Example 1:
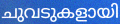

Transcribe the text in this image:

ചുവടുകളായി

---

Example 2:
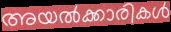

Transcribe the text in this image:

അയൽക്കാരികൾ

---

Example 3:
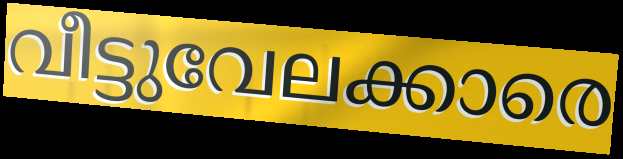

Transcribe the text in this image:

വീട്ടുവേലക്കാരെ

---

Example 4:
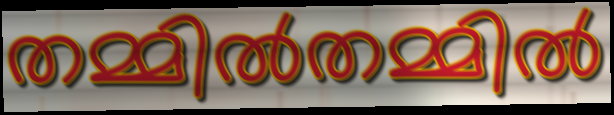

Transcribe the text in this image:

തമ്മിൽതമ്മിൽ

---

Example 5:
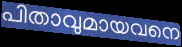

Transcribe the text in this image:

പിതാവുമായവനെ